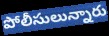
పోలీసులున్నారు